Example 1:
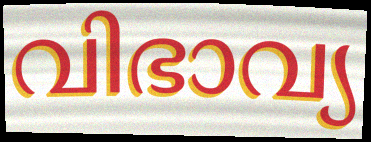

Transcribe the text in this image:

വിഭാവ്യ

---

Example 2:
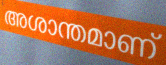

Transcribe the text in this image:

അശാന്തമാണ്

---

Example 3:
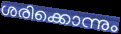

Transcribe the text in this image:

ശരിക്കൊന്നും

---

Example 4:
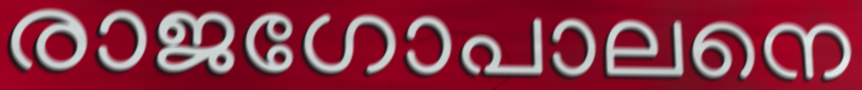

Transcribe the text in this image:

രാജഗോപാലനെ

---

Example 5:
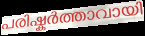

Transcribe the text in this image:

പരിഷ്കർത്താവായി